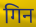
गिन